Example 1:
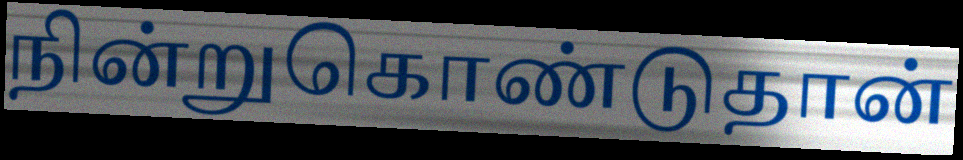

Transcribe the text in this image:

நின்றுகொண்டுதான்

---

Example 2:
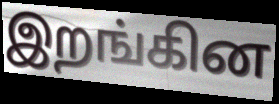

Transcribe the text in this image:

இறங்கின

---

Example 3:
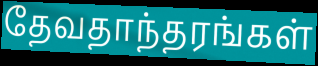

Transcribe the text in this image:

தேவதாந்தரங்கள்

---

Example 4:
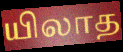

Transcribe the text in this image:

யிலாத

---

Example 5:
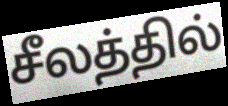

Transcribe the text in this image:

சீலத்தில்